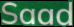
Saad